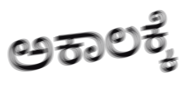
ಅಕಾಲಕ್ಕೆ